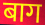
बाग